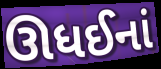
ઊધઈનાં